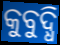
କୁବୁଦ୍ଧି